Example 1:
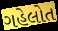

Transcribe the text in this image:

ગહેલોત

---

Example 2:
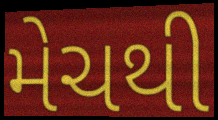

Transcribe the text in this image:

મેચથી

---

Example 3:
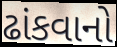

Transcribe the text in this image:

ઢાંકવાનો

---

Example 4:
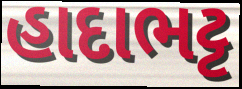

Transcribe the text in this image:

હાદાભટ્ટ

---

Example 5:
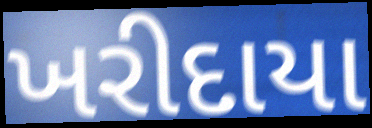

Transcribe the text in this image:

ખરીદાયા